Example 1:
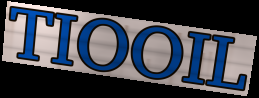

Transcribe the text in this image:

TIOOIL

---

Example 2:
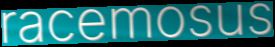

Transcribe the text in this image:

racemosus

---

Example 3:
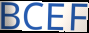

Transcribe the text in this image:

BCEF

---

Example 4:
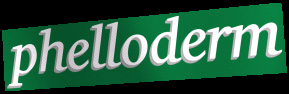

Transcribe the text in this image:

phelloderm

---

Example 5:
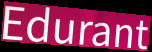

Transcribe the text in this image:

Edurant